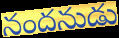
నందనుడు